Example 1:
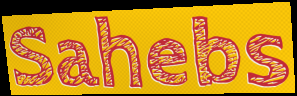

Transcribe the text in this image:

Sahebs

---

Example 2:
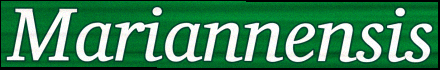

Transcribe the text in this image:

Mariannensis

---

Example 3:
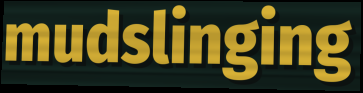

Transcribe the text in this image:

mudslinging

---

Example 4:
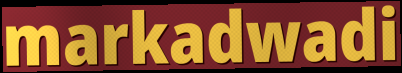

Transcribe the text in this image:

markadwadi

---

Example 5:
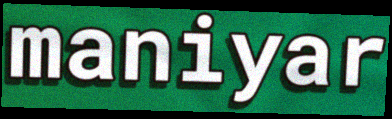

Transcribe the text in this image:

maniyar